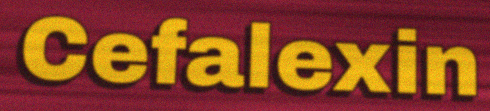
Cefalexin